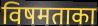
विषमताका